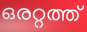
ഒരറ്റത്ത്